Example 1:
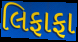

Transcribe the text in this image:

લિફાફા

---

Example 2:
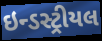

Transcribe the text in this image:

ઇન્ડસ્ટ્રીયલ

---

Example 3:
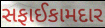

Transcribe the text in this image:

સફાઈકામદાર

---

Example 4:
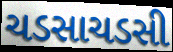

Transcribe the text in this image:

ચડસાચડસી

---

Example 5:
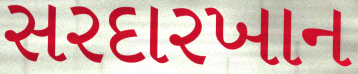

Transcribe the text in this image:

સરદારખાન